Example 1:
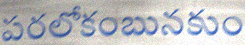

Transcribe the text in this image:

పరలోకంబునకుం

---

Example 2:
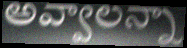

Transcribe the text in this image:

అవ్వాలన్నా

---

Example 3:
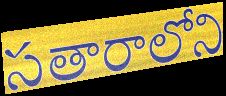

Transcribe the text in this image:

సతారాలోని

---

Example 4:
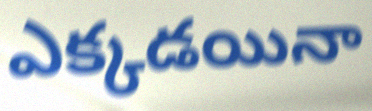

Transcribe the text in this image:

ఎక్కడయినా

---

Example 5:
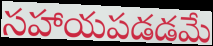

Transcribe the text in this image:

సహాయపడడమే